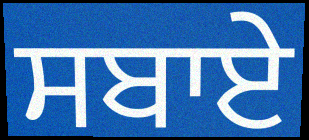
ਸਬਾਏ